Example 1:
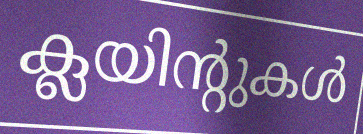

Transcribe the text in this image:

ക്ലയിന്റുകൾ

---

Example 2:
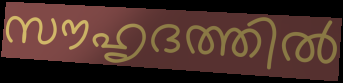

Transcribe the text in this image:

സൗഹൃദത്തിൽ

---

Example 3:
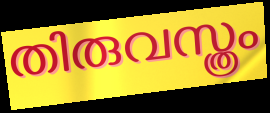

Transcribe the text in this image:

തിരുവസ്ത്രം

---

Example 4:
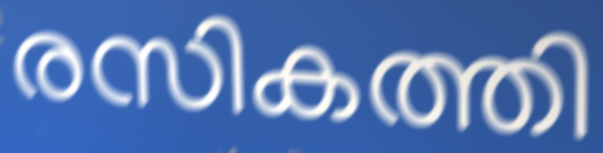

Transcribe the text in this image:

രസികത്തി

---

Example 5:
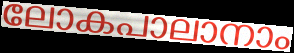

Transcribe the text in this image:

ലോകപാലാനാം